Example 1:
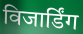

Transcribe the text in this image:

विजार्डिंग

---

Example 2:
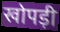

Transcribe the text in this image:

खोपड़ी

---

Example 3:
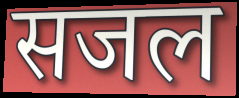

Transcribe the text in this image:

सजल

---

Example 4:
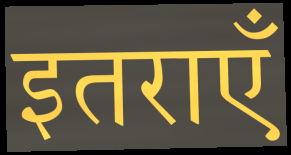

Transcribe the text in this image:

इतराएँ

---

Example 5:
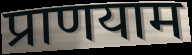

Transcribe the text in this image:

प्राणयाम